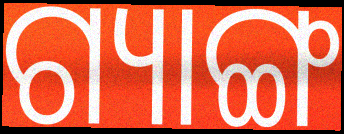
ଗ୍ୟାଙ୍ଗ